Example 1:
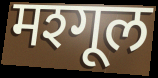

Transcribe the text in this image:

मश्गूल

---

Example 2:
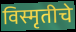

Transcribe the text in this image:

विस्मृतीचे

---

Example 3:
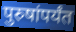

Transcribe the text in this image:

पुरुषांपर्यंत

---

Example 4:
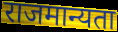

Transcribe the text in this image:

राजमान्यता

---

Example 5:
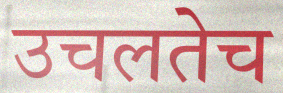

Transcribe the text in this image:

उचलतेच